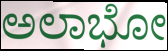
ಅಲಾಭೋ